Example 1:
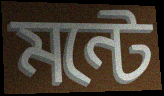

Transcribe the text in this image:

মন্টে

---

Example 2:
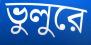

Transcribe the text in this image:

ভুলুরে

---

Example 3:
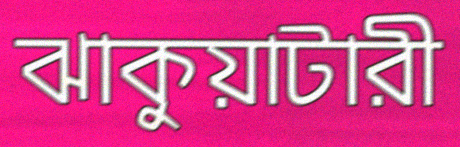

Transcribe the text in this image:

ঝাকুয়াটারী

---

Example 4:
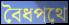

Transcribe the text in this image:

বৈধপথে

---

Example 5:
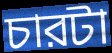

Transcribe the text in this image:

চারটা